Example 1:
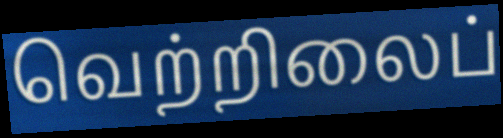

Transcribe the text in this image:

வெற்றிலைப்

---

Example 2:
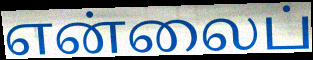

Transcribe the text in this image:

என்லைப்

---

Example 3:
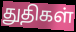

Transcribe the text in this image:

துதிகள்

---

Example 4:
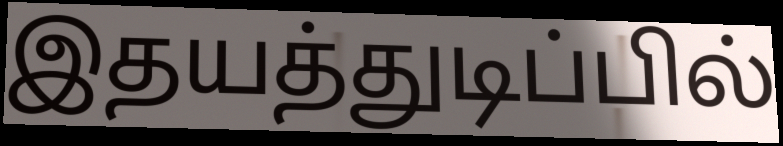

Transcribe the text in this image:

இதயத்துடிப்பில்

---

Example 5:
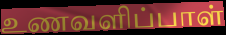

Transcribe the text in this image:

உணவளிப்பாள்